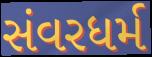
સંવરધર્મ